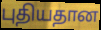
புதியதான